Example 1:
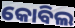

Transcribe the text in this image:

କୋବିଲ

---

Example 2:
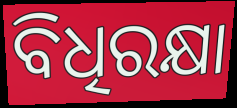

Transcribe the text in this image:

ବିଧିରକ୍ଷା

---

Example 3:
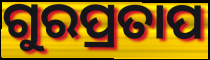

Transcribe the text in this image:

ଗୁରପ୍ରତାପ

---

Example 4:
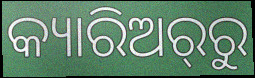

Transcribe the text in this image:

କ୍ୟାରିଅର୍‌ରୁ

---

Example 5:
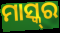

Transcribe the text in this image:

ମାସ୍କ୍‌ର